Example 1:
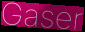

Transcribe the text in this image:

Gaser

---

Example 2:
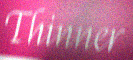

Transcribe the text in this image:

Thinner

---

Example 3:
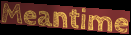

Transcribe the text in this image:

Meantime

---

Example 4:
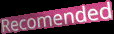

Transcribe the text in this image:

Recomended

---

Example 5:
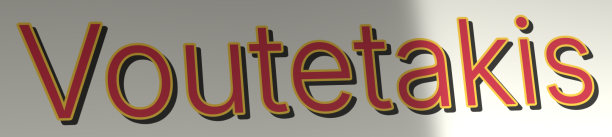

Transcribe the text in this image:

Voutetakis